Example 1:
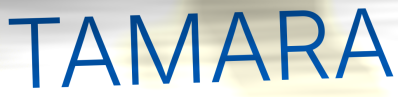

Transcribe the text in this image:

TAMARA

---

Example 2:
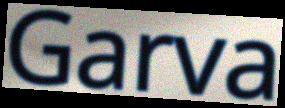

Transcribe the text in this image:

Garva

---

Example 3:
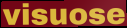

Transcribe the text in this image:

visuose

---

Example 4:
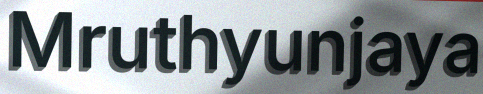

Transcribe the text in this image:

Mruthyunjaya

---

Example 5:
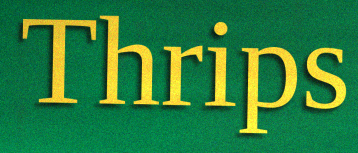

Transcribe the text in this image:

Thrips